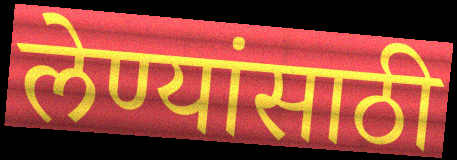
लेण्यांसाठी